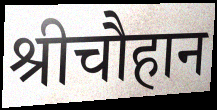
श्रीचौहान